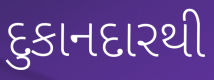
દુકાનદારથી